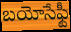
బయోసేఫ్టీ